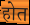
होत